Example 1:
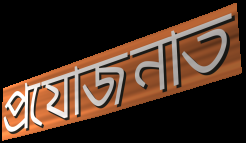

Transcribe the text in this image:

প্ৰযোজনাত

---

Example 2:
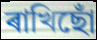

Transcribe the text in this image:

ৰাখিছোঁ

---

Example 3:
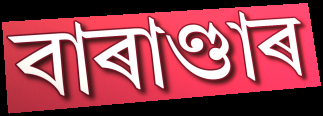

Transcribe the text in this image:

বাৰাণ্ডাৰ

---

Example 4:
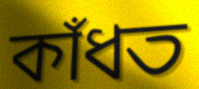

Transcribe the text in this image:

কাঁধত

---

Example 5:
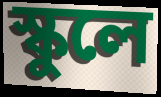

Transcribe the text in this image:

স্কুলে